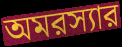
অমরস্যার